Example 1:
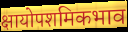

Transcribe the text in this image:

क्षायोपशमिकभाव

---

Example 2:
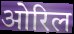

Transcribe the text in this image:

ओरिल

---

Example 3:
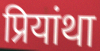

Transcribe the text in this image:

प्रियांथा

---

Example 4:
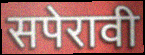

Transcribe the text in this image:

सपेरावी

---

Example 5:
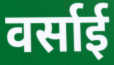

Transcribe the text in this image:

वर्साई